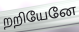
றறியேனே